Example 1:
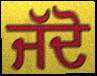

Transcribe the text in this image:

ਜੱਦੋ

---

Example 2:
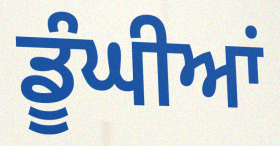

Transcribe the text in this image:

ਡੂੰਘੀਆਂ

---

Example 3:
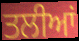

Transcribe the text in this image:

ਤਲੀਆਂ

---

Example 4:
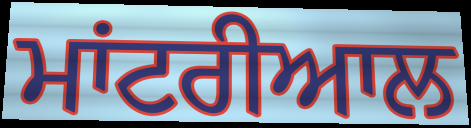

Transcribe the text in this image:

ਮਾਂਟਰੀਆਲ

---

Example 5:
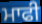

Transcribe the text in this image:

ਮਾਫੀ